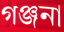
গঞ্জনা